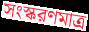
সংস্করণমাত্র